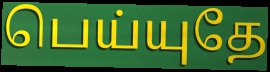
பெய்யுதே